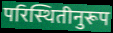
परिस्थितीनुरूप